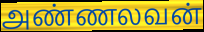
அண்ணலவன்